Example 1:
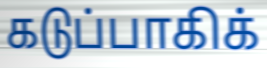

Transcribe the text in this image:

கடுப்பாகிக்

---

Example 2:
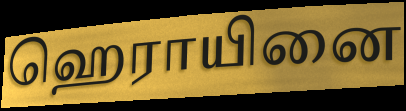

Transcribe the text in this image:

ஹெராயினை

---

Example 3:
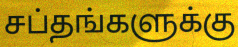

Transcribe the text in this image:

சப்தங்களுக்கு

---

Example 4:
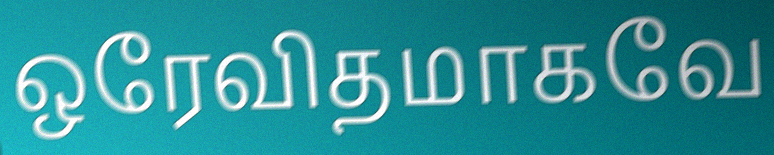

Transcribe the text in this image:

ஒரேவிதமாகவே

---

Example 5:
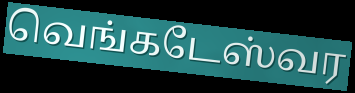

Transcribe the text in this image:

வெங்கடேஸ்வர